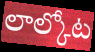
లాల్కోట